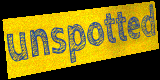
unspotted